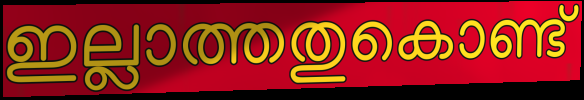
ഇല്ലാത്തതുകൊണ്ട്